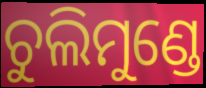
ଚୁଲିମୁଣ୍ଡେ